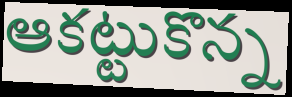
ఆకట్టుకొన్న